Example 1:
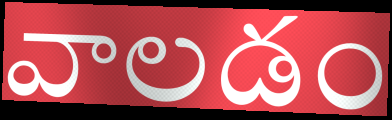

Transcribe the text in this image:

వాలడం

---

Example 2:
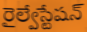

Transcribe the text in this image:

రైల్వేస్టేషన్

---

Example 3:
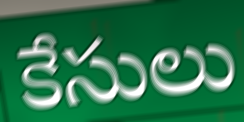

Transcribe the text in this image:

కేసులు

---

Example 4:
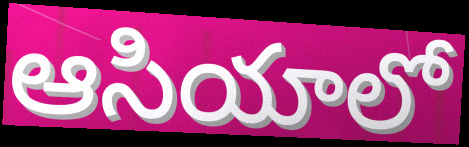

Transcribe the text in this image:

ఆసియాలో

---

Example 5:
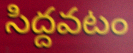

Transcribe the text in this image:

సిద్దవటం